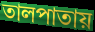
তালপাতায়